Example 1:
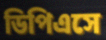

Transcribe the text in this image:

ডিপিএসে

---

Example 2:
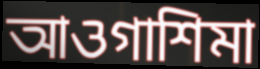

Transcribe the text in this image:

আওগাশিমা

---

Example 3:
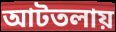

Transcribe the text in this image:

আটতলায়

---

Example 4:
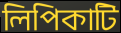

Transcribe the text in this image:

লিপিকাটি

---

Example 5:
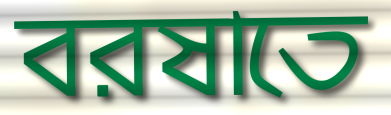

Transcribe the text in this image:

বরষাতে